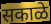
सकाळे